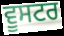
ਵੂਸਟਰ